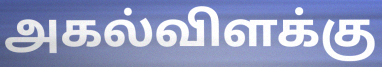
அகல்விளக்கு